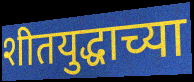
शीतयुद्धाच्या